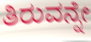
ತಿರುವನ್ನೇ